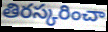
తిరస్కరించా